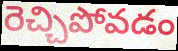
రెచ్చిపోవడం